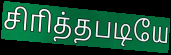
சிரித்தபடியே